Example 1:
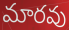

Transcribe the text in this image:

మారవు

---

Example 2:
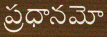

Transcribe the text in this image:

ప్రధానమో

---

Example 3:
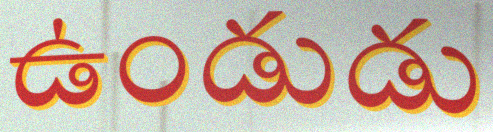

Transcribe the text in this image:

ఉండుడు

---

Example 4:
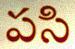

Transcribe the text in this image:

పసి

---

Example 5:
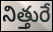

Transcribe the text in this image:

నిత్తురే